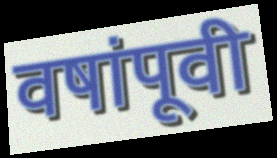
वषांपूवी